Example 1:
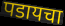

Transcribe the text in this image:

पडायचा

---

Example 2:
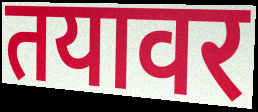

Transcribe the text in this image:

तयावर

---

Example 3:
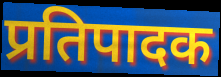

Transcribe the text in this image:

प्रतिपादक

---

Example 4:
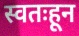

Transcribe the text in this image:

स्वतःहून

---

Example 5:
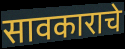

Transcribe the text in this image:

सावकाराचे